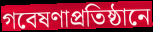
গবেষণাপ্রতিষ্ঠানে